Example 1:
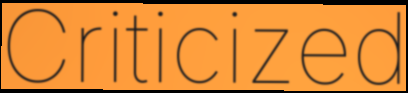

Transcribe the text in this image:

Criticized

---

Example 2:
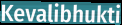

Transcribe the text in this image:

Kevalibhukti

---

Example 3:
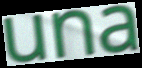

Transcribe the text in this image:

una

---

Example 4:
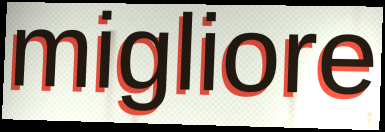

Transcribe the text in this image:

migliore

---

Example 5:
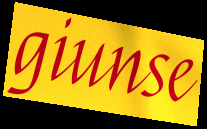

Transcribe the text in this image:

giunse